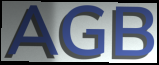
AGB